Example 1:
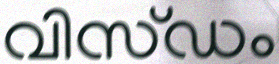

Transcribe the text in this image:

വിസ്ഡം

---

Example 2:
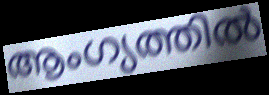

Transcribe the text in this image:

ആംഗ്യത്തിൽ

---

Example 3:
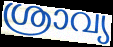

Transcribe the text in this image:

ശ്രാവ്യ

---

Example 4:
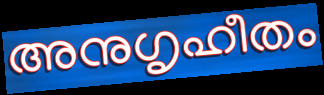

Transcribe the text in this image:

അനുഗൃഹീതം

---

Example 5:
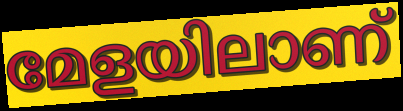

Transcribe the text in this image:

മേളയിലാണ്